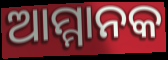
ଆମ୍ମାନକ